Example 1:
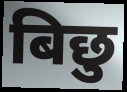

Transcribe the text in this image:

बिछु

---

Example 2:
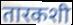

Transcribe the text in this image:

तारकशी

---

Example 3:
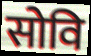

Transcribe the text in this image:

सोवि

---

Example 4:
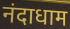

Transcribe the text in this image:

नंदाधाम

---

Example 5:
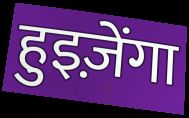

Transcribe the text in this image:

हुइज़ेंगा